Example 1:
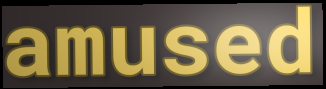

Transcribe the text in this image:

amused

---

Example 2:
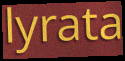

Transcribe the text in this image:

lyrata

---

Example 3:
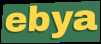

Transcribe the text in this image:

ebya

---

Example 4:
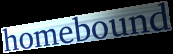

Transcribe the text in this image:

homebound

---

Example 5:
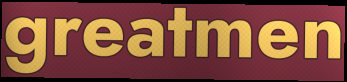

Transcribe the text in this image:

greatmen